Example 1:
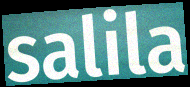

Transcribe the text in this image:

salila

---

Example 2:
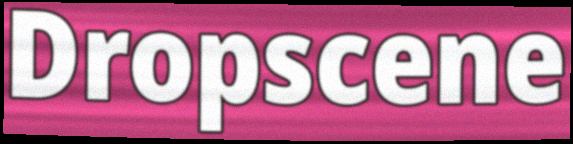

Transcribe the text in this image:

Dropscene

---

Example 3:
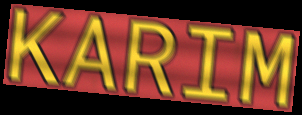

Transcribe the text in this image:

KARIM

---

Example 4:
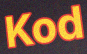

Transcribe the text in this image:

Kod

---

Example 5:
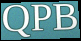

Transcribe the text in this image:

QPB